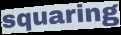
squaring